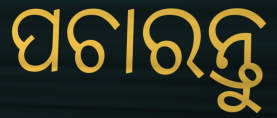
ପଚାରନ୍ତୁ